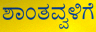
ಶಾಂತವ್ವಳಿಗೆ